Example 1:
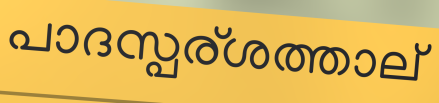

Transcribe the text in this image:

പാദസ്പര്ശത്താല്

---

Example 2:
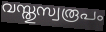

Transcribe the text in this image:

വസ്തുസ്വരൂപം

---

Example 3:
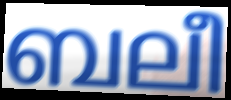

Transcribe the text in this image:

ബലീ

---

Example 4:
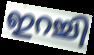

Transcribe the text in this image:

ഇറച്ചി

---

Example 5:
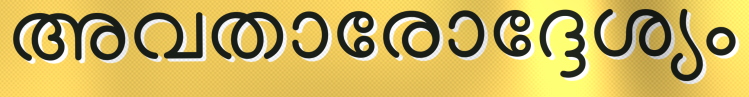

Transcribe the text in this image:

അവതാരോദ്ദേശ്യം